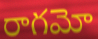
రాగమో